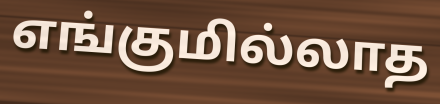
எங்குமில்லாத